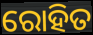
ରୋହିତ